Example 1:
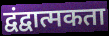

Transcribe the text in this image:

द्वंद्वात्मकता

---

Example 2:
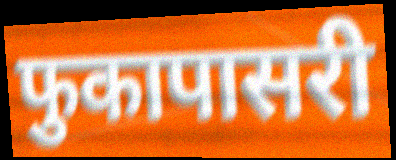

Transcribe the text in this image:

फुकापासरी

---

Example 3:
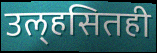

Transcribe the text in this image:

उल्हसितही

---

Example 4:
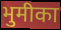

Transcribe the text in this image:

भुमीका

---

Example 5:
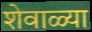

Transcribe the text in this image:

शेवाळ्या